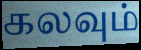
கலவும்